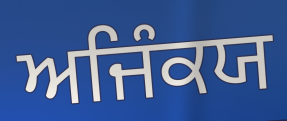
ਅਜਿੰਕਯ